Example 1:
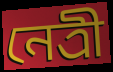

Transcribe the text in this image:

নেত্রী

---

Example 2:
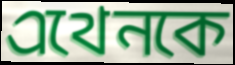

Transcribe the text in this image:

এথেনকে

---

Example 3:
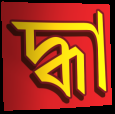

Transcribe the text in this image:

দ্ধা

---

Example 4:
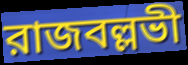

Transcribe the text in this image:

রাজবল্লভী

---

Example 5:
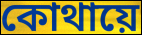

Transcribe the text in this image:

কোথায়ে